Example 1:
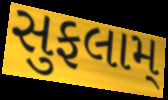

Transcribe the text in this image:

સુફલામ્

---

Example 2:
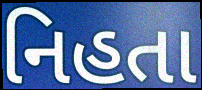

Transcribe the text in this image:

નિહતા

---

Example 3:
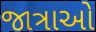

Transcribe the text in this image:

જાત્રાઓ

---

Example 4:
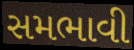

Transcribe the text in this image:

સમભાવી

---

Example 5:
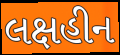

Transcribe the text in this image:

લક્ષહીન